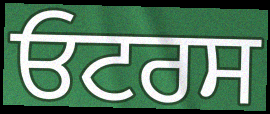
ਓਟਰਸ